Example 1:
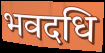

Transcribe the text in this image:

भवदधि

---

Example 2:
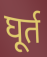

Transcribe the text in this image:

घूर्त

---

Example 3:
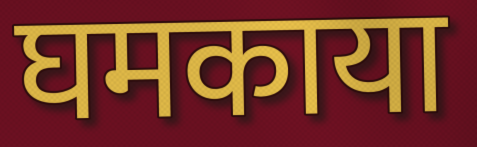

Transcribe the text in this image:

घमकाया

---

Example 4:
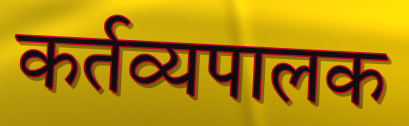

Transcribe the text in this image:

कर्तव्यपालक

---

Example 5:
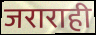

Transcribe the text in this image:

जराराही